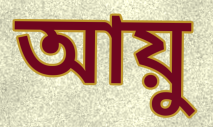
আয়ু